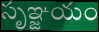
సృఞ్జయం